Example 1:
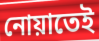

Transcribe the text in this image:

নোয়াতেই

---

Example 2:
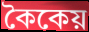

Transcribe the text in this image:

কৈকেয়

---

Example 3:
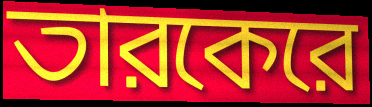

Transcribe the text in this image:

তারকেরে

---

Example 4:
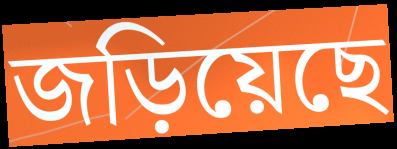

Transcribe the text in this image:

জড়িয়েছে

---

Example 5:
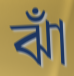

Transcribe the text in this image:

ঝাঁ